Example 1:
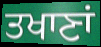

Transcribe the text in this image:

ਤਖਾਣਾਂ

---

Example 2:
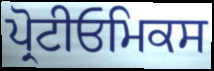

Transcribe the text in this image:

ਪ੍ਰੋਟੀਓਮਿਕਸ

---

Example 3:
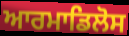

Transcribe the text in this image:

ਆਰਮਾਡਿਲੋਸ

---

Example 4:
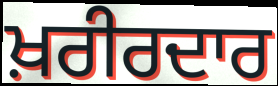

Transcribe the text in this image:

ਖ਼ਰੀਰਦਾਰ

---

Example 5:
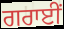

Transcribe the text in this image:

ਗਰਾਈਂ